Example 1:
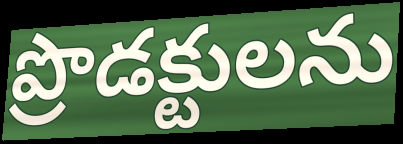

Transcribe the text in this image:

ప్రొడక్టులను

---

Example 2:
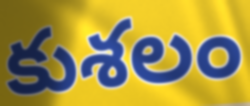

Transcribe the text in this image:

కుశలం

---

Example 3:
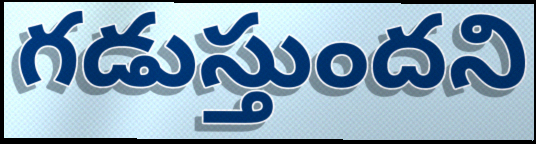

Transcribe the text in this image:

గడుస్తుందని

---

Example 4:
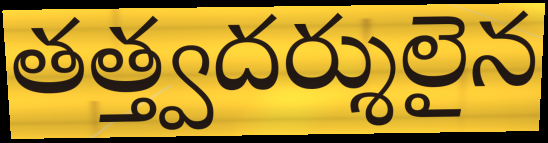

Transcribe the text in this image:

తత్త్వదర్శులైన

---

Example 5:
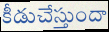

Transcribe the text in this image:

కీడుచేస్తుందా